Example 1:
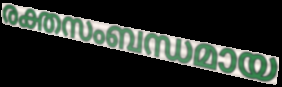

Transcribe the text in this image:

രക്തസംബന്ധമായ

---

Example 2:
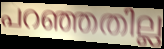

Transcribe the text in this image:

പറഞ്ഞതില്ല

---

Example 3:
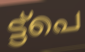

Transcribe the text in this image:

ട്ട്പെ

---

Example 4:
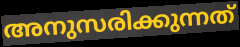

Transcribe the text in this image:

അനുസരിക്കുന്നത്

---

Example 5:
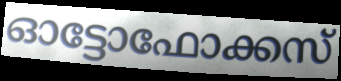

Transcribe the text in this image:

ഓട്ടോഫോക്കസ്